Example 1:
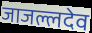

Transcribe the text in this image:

जाजल्लदेव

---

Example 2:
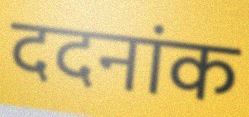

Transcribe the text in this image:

ददनांक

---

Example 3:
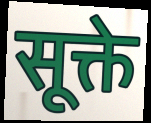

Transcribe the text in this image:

सूक्ते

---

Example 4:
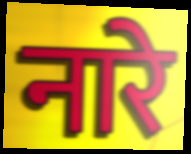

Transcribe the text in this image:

नारे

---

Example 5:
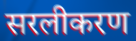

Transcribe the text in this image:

सरलीकरण